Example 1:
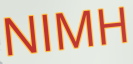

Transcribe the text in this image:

NIMH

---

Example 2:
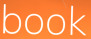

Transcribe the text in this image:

book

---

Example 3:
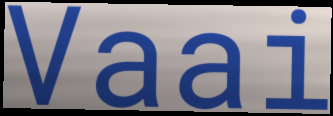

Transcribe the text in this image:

Vaai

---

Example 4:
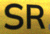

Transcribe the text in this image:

SR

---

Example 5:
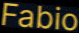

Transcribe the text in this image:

Fabio